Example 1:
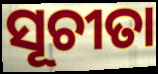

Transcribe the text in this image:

ସୂଚୀତା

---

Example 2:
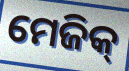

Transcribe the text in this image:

ମେଜିକ୍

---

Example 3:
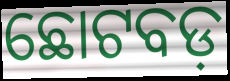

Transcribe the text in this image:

ଛୋଟବଡ଼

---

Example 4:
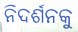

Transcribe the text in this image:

ନିଦର୍ଶନକୁ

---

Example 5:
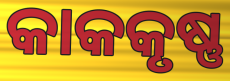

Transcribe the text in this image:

କାକକୃଷ୍ଣ